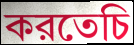
করতেচি